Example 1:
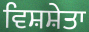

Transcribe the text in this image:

ਵਿਸ਼ਸ਼ੇਤਾ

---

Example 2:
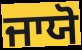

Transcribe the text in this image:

ਜਾਯੋ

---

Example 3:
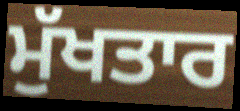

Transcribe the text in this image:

ਮੁੱਖਤਾਰ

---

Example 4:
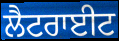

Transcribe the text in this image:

ਲੈਟਰਾਈਟ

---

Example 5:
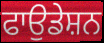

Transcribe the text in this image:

ਫਾਉਡੇਸ਼ਨ